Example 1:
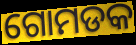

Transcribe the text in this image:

ଗୋମଡକ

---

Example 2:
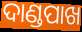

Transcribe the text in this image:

ଦାଣ୍ଡପାଖ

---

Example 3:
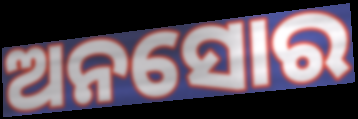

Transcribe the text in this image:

ଅନସୋର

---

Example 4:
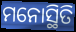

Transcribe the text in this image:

ମନୋସ୍ଥିତି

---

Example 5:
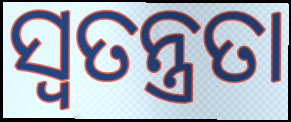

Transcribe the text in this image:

ସ୍ବତନ୍ତ୍ରତା